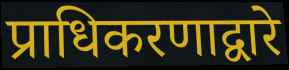
प्राधिकरणाद्वारे